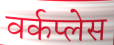
वर्कप्लेस